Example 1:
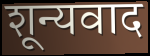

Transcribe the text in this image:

शून्यवाद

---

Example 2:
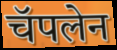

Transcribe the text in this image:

चॅपलेन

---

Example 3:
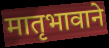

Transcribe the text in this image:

मातृभावाने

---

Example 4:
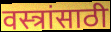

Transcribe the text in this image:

वस्त्रांसाठी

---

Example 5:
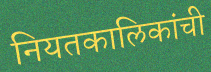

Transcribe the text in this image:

नियतकालिकांची